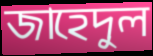
জাহেদুল